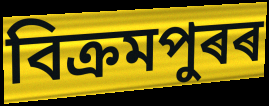
বিক্ৰমপুৰৰ